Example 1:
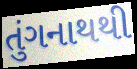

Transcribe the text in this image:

તુંગનાથથી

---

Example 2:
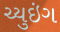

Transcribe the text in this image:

ચ્યુઇંગ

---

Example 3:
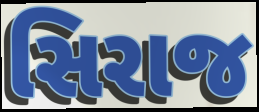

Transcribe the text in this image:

સિરાજ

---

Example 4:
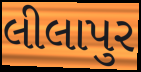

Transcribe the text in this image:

લીલાપુર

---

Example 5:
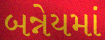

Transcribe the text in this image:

બન્નેયમાં